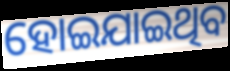
ହୋଇଯାଇଥିବ